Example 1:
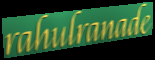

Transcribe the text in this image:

rahulranade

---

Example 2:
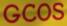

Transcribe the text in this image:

GCOS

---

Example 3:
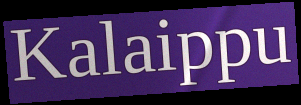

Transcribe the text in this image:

Kalaippu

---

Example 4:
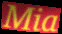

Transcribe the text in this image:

Mia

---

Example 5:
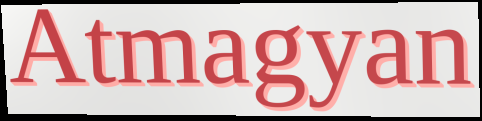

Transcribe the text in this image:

Atmagyan